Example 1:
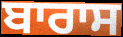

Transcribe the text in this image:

ਬਾਰਾਸ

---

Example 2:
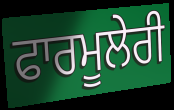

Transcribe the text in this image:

ਫਾਰਮੂਲੇਰੀ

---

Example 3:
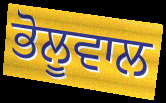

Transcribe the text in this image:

ਭੋਲੂਵਾਲ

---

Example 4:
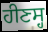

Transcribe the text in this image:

ਹੀਣਸ੍ਹ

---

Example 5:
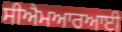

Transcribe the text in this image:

ਸੀਐਮਆਰਆਈ